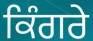
ਕਿੰਗਰੇ